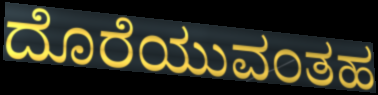
ದೊರೆಯುವಂತಹ